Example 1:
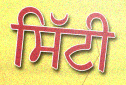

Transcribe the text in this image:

ਸਿੱਟੀ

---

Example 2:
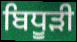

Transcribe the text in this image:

ਬਿਧੂੜੀ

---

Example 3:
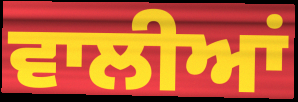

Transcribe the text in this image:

ਵਾਲੀਆਂ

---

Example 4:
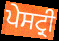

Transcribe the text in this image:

ਪੇਸਟ੍ਰੀ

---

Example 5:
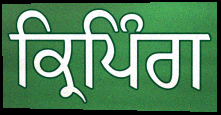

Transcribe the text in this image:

ਕ੍ਰਿਪਿੰਗ